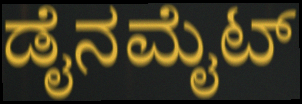
ಡೈನಮೈಟ್